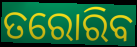
ତରୋରିବ